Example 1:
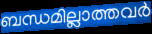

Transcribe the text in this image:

ബന്ധമില്ലാത്തവർ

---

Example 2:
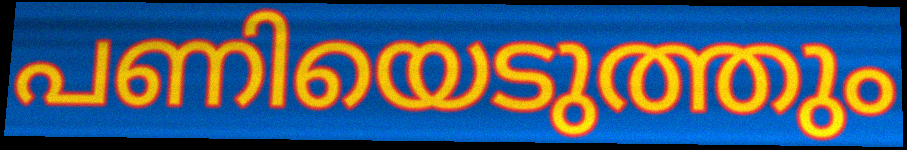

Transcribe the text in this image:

പണിയെടുത്തും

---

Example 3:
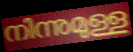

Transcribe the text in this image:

നിന്നുമുള്ള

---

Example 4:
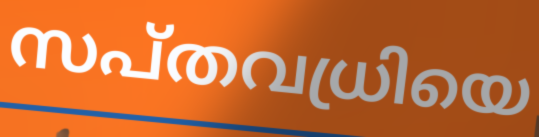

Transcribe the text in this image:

സപ്തവധ്രിയെ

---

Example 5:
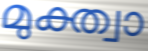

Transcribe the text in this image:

മുക്ത്വാ